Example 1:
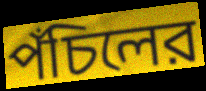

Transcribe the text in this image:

পঁচিলের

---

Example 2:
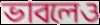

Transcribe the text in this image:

ভাবলেও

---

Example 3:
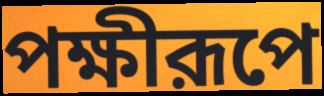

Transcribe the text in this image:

পক্ষীরূপে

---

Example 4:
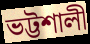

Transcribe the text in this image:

ভট্টশালী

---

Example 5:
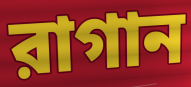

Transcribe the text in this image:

রাগান